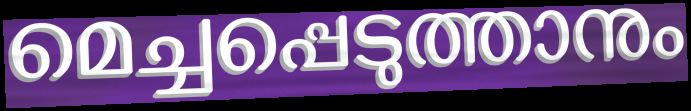
മെച്ചപ്പെടുത്താനും